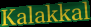
Kalakkal